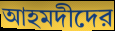
আহমদীদের